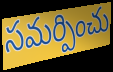
సమర్పించు